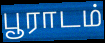
பூராடம்